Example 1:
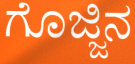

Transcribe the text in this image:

ಗೊಜ್ಜಿನ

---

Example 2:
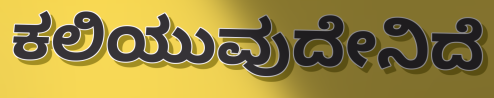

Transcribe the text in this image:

ಕಲಿಯುವುದೇನಿದೆ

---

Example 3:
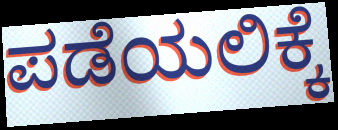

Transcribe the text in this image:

ಪಡೆಯಲಿಕ್ಕೆ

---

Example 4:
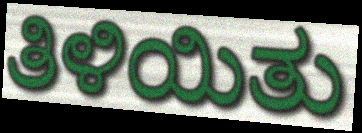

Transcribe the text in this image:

ತಿಳಿಯಿತು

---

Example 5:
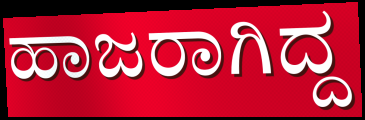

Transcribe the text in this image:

ಹಾಜರಾಗಿದ್ದ